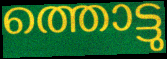
ത്തൊട്ടു